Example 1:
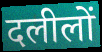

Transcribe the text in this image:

दलीलों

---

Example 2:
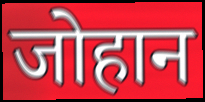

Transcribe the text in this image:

जोहान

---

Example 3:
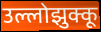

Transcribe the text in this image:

उल्लोझुक्कू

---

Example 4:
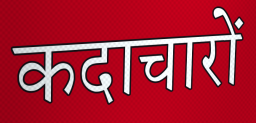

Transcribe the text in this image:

कदाचारों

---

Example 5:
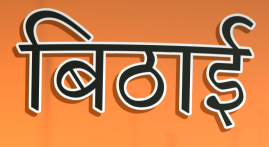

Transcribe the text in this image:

बिठाई